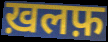
ख़लफ़